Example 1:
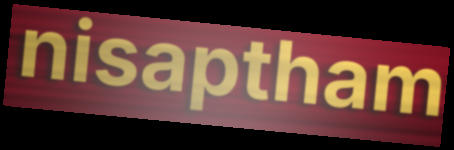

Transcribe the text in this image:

nisaptham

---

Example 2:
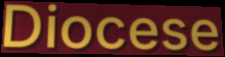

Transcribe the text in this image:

Diocese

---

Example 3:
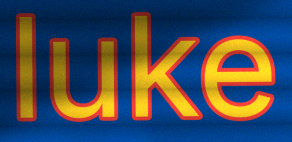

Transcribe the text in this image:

luke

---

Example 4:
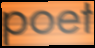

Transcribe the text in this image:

poet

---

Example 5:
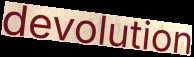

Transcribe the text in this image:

devolution